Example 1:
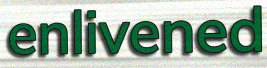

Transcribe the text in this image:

enlivened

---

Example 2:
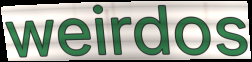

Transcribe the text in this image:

weirdos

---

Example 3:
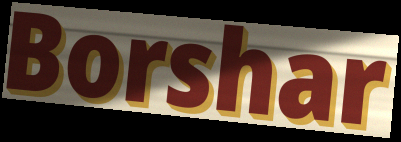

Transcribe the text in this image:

Borshar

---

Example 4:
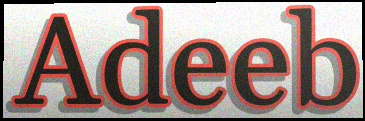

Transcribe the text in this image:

Adeeb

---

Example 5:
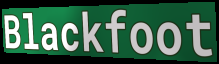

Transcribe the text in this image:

Blackfoot